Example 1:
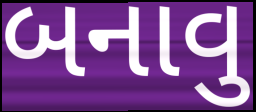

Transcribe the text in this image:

બનાવુ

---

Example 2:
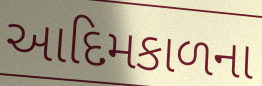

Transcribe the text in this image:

આદિમકાળના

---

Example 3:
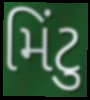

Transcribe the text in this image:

મિંટુ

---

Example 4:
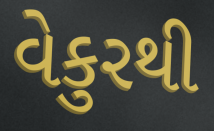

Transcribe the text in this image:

વેકુરથી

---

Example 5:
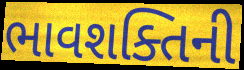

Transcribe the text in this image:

ભાવશક્તિની